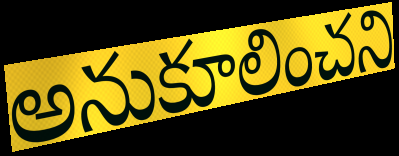
అనుకూలించని